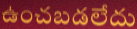
ఉంచబడలేదు